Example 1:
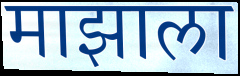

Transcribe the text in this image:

माझाला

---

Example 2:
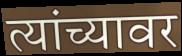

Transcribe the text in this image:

त्यांच्यावर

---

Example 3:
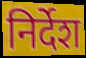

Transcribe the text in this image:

निर्देश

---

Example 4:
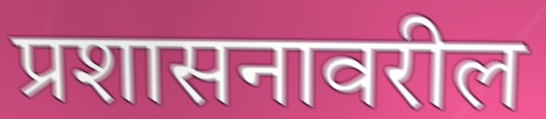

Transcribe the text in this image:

प्रशासनावरील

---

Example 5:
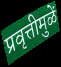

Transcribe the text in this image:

प्रवृत्तीमुळें